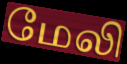
மேலி